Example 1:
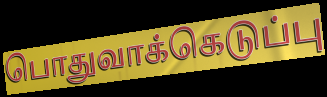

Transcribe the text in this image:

பொதுவாக்கெடுப்பு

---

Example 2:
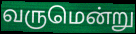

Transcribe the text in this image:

வருமென்று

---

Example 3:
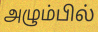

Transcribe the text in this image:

அழும்பில்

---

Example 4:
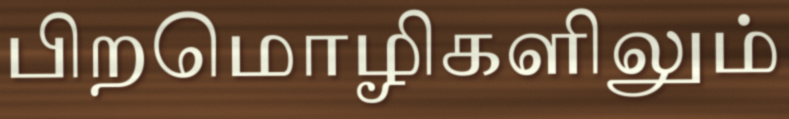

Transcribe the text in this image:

பிறமொழிகளிலும்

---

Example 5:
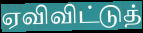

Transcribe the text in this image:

ஏவிவிட்டுத்